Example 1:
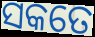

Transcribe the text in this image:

ସକତେ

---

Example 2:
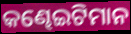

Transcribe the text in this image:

କଣ୍ଢେଇଟିମାନ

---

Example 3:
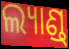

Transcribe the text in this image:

ଲ୍ୟାଣ୍ଡ୍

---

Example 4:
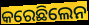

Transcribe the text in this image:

କରେଛିଲେନ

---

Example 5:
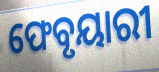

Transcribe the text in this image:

ଫେବୃୟାରୀ